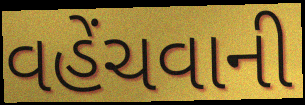
વહેંચવાની